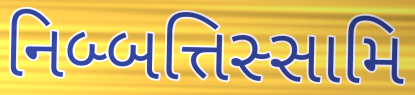
નિબ્બત્તિસ્સામિ